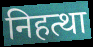
निहत्था